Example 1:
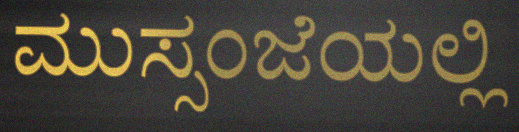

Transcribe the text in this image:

ಮುಸ್ಸಂಜೆಯಲ್ಲಿ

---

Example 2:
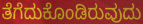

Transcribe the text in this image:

ತೆಗೆದುಕೊಂಡಿರುವುದು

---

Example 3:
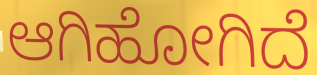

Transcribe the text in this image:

ಆಗಿಹೋಗಿದೆ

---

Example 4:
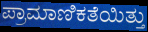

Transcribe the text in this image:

ಪ್ರಾಮಾಣಿಕತೆಯಿತ್ತು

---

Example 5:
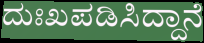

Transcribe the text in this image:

ದುಃಖಪಡಿಸಿದ್ದಾನೆ